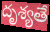
దృశ్యతే